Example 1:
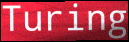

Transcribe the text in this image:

Turing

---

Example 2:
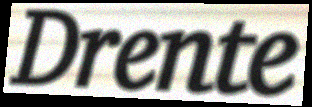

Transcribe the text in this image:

Drente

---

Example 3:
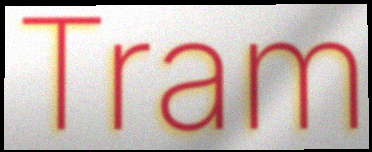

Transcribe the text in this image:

Tram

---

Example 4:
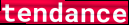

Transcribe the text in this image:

tendance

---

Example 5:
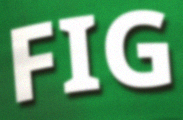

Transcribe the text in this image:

FIG